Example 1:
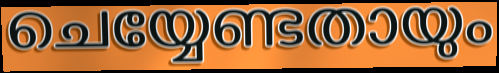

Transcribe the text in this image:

ചെയ്യേണ്ടതായും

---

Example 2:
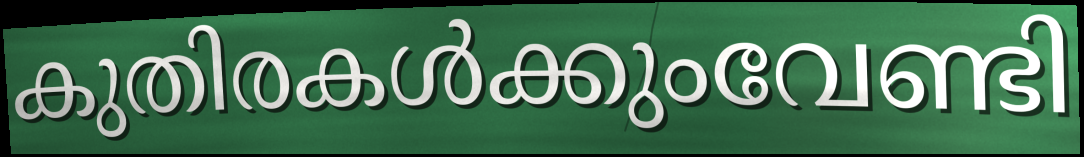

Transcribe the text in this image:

കുതിരകൾക്കുംവേണ്ടി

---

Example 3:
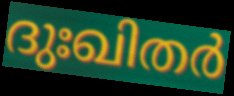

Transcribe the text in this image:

ദുഃഖിതർ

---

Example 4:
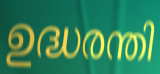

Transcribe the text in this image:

ഉദ്ധരന്തി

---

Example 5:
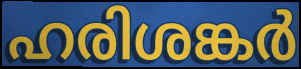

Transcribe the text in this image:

ഹരിശങ്കർ